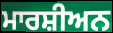
ਮਾਰਸ਼ੀਅਨ